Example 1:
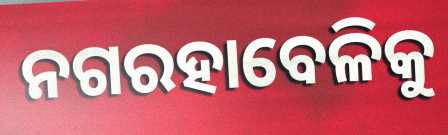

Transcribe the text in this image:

ନଗରହାବେଳିକୁ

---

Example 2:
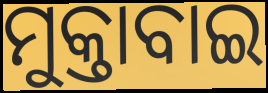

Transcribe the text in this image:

ମୁକ୍ତାବାଇ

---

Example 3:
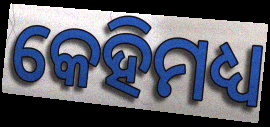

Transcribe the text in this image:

କେହିମଧ୍ୟ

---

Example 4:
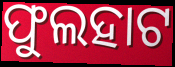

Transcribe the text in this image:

ଫୁଲହାଟ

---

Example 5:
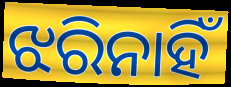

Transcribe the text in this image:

ଝରିନାହିଁ